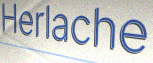
Herlache